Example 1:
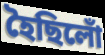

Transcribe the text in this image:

হৈছিলোঁ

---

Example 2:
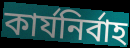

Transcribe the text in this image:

কাৰ্যনিৰ্বাহ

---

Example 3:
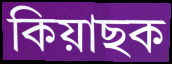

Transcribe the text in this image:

কিয়াছক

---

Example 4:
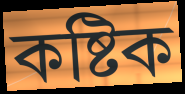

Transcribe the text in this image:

কষ্টিক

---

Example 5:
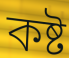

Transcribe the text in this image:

কষ্ট